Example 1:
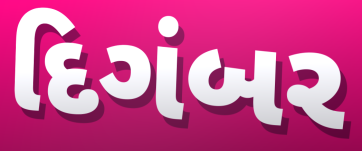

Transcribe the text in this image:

દિગંબર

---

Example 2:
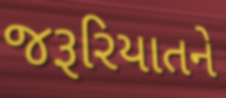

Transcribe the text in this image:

જરૂરિયાતને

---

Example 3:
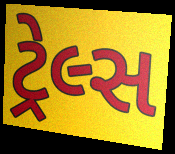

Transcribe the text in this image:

ટ્રેલ્સ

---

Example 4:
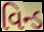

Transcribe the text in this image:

વિન્ડ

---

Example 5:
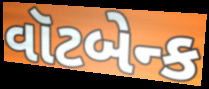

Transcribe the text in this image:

વૉટબેન્ક